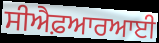
ਸੀਐਫ਼ਆਰਆਈ